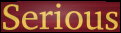
Serious